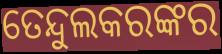
ତେନ୍ଦୁଲକରଙ୍କର